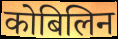
कोबिलिन